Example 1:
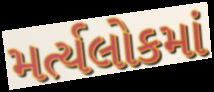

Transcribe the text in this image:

મર્ત્યલોકમાં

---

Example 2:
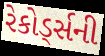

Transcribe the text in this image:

રેકોર્ડ્સની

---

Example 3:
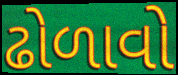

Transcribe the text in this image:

ઢોળાવો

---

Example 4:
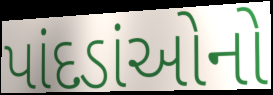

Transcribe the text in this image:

પાંદડાંઓનો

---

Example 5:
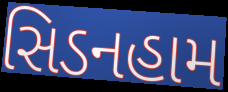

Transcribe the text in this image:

સિડનહામ